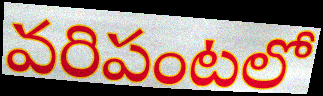
వరిపంటలో